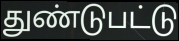
துண்டுபட்டு